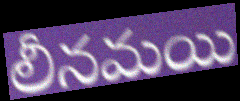
లీనమయి